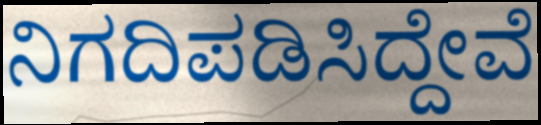
ನಿಗದಿಪಡಿಸಿದ್ದೇವೆ